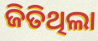
ଜିତିଥିଲା